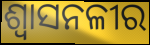
ଶ୍ୱାସନଳୀର